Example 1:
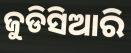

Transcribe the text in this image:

ଜୁଡିସିଆରି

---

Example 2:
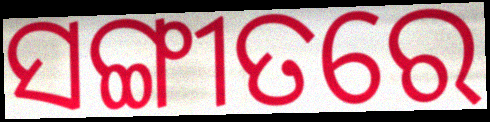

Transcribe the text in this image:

ସଙ୍ଗୀତରେ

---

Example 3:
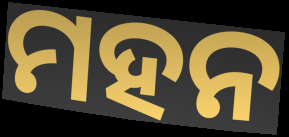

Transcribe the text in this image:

ମହନ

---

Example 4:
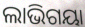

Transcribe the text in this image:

ଲାଭିଗୟା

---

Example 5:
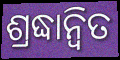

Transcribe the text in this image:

ଶ୍ରଦ୍ଧାନ୍ୱିତ